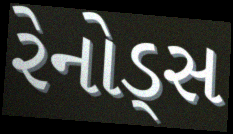
રેનોડ્સ